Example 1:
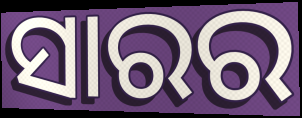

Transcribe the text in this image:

ସାରର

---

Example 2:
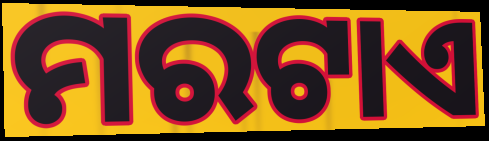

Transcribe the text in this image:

ମରଟାଏ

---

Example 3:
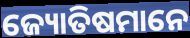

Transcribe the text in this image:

ଜ୍ୟୋତିଷମାନେ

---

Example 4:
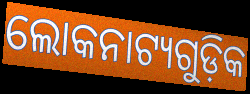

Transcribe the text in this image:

ଲୋକନାଟ୍ୟଗୁଡ଼ିକ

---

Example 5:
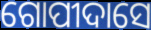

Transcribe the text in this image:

ଗୋପୀଦାସେ